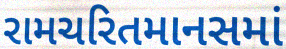
રામચરિતમાનસમાં